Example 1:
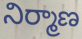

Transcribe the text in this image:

నిర్మాణ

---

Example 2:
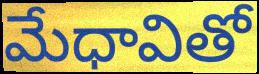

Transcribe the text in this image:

మేధావితో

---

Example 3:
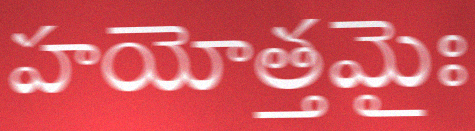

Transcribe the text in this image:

హయోత్తమైః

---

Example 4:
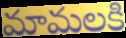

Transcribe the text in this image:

మామలకి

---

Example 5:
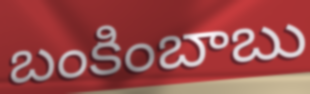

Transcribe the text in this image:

బంకింబాబు